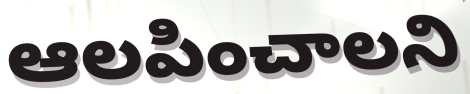
ఆలపించాలని